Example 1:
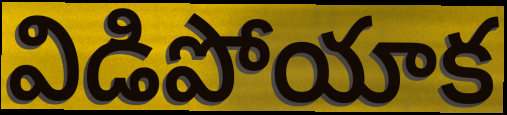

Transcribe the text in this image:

విడిపోయాక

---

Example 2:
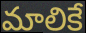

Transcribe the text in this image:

మాలికే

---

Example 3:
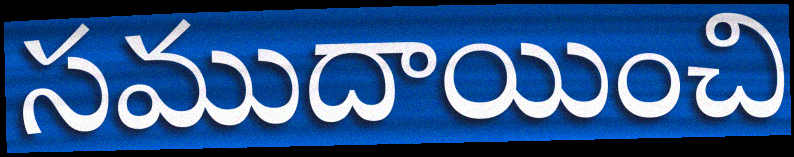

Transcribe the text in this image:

సముదాయించి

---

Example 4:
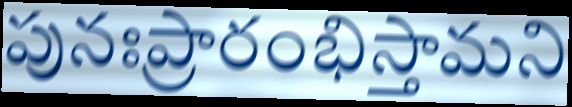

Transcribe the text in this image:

పునఃప్రారంభిస్తామని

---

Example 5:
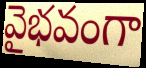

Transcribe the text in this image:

వైభవంగా